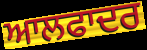
ਆਲਫਾਦਰ